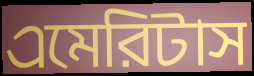
এমেরিটাস